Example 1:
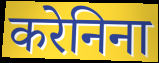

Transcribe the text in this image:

करेनिना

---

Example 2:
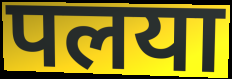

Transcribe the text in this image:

पलया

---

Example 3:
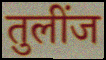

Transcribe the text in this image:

तुलींज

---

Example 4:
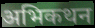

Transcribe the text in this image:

अभिकथन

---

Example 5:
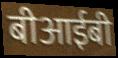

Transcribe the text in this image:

बीआईबी